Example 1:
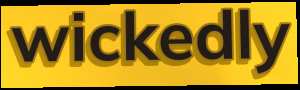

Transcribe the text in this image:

wickedly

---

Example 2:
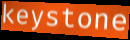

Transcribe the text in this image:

keystone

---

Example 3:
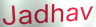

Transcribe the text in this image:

Jadhav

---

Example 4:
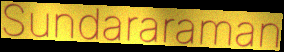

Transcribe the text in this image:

Sundararaman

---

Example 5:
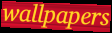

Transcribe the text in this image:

wallpapers